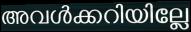
അവൾക്കറിയില്ലേ